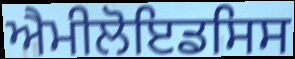
ਐਮੀਲੋਇਡਸਿਸ